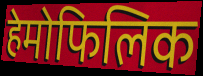
हेमोफिलिक